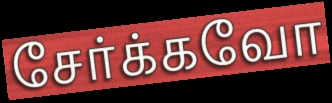
சேர்க்கவோ